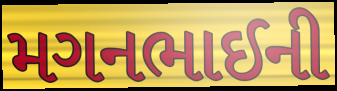
મગનભાઈની